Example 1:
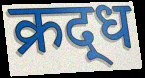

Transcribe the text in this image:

क्रद्ध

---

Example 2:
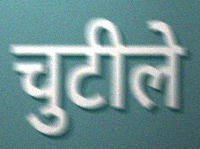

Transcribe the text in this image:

चुटीले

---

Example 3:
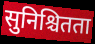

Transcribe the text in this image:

सुनिश्चितता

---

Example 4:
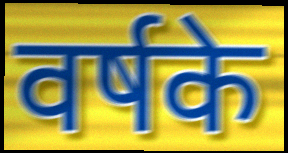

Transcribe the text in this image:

वर्षके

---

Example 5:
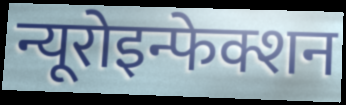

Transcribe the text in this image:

न्यूरोइन्फेक्शन